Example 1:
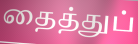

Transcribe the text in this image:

தைத்துப்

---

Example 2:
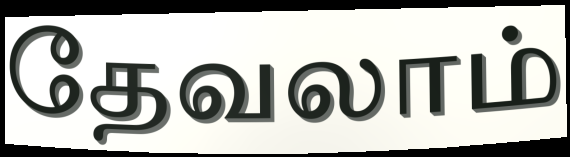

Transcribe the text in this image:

தேவலாம்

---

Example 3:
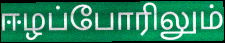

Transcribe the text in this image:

ஈழப்போரிலும்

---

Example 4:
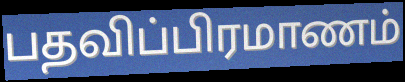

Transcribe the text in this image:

பதவிப்பிரமாணம்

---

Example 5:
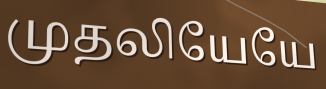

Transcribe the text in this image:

முதலியேயே